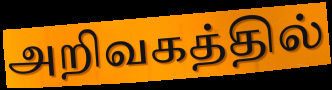
அறிவகத்தில்